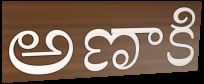
అణాకి